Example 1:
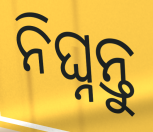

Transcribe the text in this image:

ନିଘ୍ନନ୍ତୁ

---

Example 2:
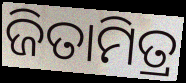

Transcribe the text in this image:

ଜିତାମିତ୍ର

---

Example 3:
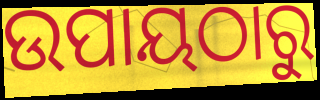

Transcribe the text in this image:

ଉପାୟଠାରୁ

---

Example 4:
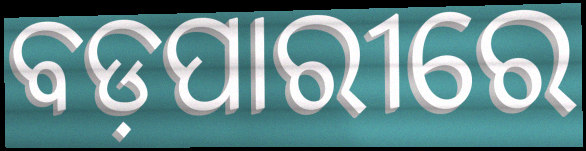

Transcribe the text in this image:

ବଡ଼ପାରୀରେ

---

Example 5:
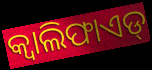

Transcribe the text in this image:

କ୍ୱାଲିଫାଏଡ୍